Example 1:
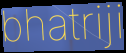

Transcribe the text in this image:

bhatriji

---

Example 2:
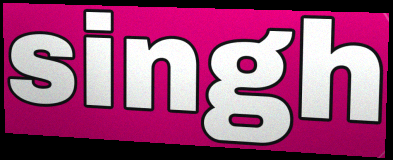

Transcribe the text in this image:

singh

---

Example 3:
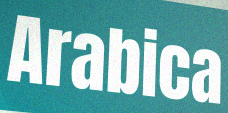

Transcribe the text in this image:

Arabica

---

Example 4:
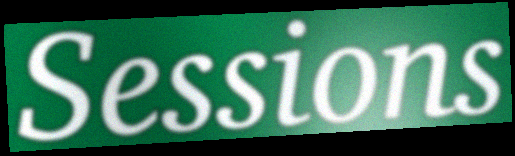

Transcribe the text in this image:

Sessions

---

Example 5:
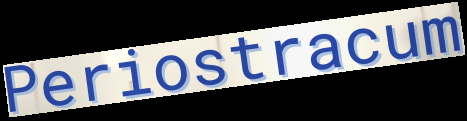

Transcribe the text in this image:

Periostracum